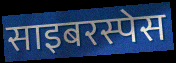
साइबरस्पेस